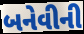
બનેવીની